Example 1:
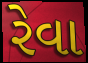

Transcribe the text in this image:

રેવા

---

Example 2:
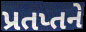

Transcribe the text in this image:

પ્રતપ્તને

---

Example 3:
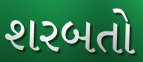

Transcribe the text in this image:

શરબતો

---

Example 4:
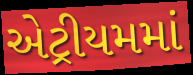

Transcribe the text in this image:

એટ્રીયમમાં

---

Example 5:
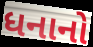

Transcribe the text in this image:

ધનાનો